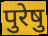
पुरेषु